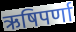
ऋषिपर्णा